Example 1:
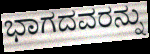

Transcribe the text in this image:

ಭಾಗದವರನ್ನು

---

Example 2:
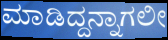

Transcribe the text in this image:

ಮಾಡಿದ್ದನ್ನಾಗಲೀ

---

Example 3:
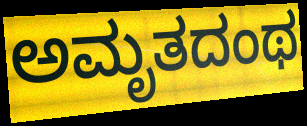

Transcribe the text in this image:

ಅಮೃತದಂಥ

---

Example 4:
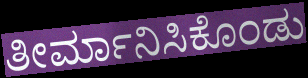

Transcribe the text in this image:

ತೀರ್ಮಾನಿಸಿಕೊಂಡು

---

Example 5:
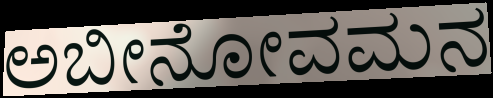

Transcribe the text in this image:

ಅಬೀನೋವಮನ